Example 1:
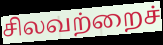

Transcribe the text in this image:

சிலவற்றைச்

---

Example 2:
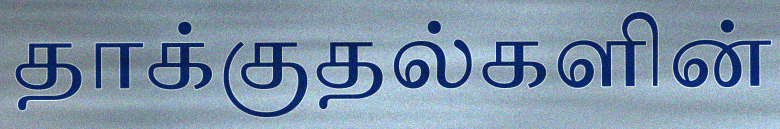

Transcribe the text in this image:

தாக்குதல்களின்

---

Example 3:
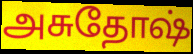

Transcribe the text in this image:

அசுதோஷ்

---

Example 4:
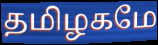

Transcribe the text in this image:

தமிழகமே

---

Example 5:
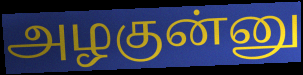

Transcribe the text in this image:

அழகுன்னு